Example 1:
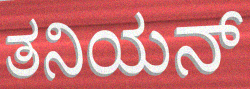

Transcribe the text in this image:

ತನಿಯನ್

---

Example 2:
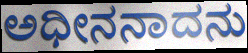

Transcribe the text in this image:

ಅಧೀನನಾದನು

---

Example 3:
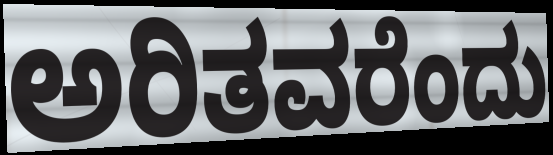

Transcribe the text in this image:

ಅರಿತವರೆಂದು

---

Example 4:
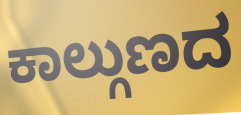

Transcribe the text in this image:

ಕಾಲ್ಗುಣದ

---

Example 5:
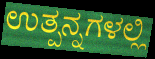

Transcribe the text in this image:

ಉತ್ಪನ್ನಗಳಲ್ಲಿ